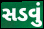
સડવું